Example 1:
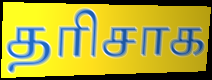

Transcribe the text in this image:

தரிசாக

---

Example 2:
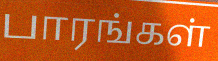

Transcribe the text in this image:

பாரங்கள்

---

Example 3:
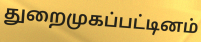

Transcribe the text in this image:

துறைமுகப்பட்டினம்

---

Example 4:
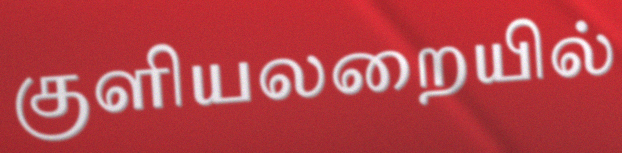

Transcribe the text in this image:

குளியலறையில்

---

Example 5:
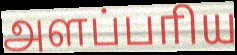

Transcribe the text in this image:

அளப்பரிய